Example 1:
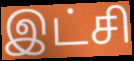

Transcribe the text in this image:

இட்சி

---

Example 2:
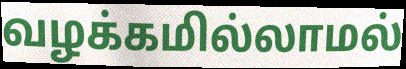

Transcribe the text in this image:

வழக்கமில்லாமல்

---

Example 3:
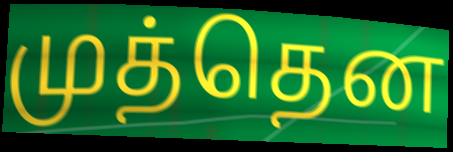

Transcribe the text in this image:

முத்தென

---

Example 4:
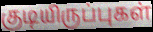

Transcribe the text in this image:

குடியிருப்புகள்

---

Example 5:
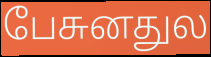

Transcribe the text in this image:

பேசுனதுல